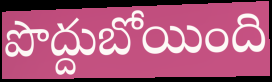
పొద్దుబోయింది